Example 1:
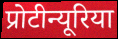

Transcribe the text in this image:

प्रोटीन्यूरिया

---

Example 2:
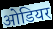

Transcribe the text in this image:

ओडियर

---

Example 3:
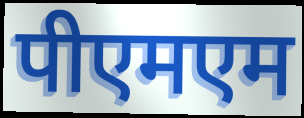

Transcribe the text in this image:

पीएमएम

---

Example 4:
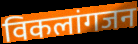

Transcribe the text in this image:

विकलांगजन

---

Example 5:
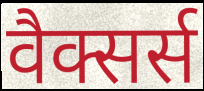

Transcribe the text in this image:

वैक्सर्स